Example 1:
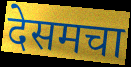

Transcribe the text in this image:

देसमचा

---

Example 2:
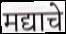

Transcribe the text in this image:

मद्याचे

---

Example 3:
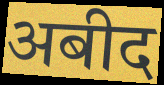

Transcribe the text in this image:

अबीद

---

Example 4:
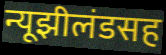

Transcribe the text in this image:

न्यूझीलंडसह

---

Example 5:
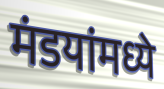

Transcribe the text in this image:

मंडयांमध्ये